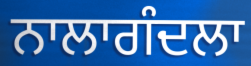
ਨਾਲਾਗੰਦਲਾ